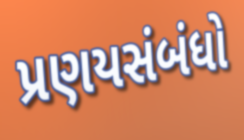
પ્રણયસંબંધો